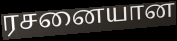
ரசனையான